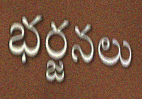
భర్జనలు